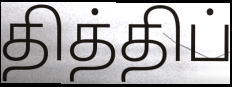
தித்திப்